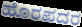
ಹೊರಪದರ